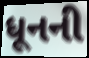
ધૂનની